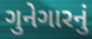
ગુનેગારનું